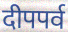
दीपपर्व